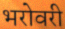
भरोवरी